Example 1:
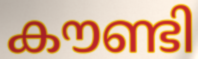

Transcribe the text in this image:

കൗണ്ടി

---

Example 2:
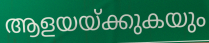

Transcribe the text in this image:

ആളയയ്ക്കുകയും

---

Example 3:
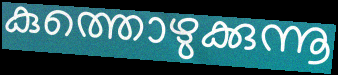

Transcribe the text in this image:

കുത്തൊഴുക്കുന്നൂ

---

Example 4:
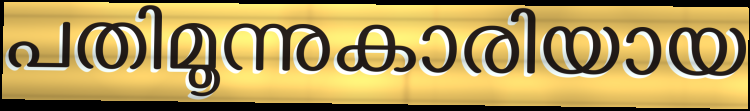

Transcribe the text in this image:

പതിമൂന്നുകാരിയായ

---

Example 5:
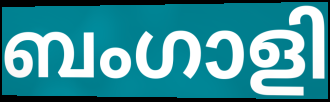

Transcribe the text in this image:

ബംഗാളി